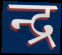
न्द्र